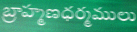
బ్రాహ్మణధర్మములు